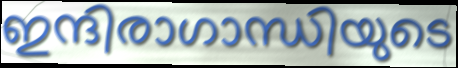
ഇന്ദിരാഗാന്ധിയുടെ